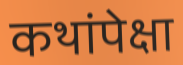
कथांपेक्षा